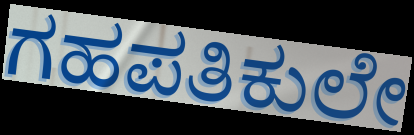
ಗಹಪತಿಕುಲೇ